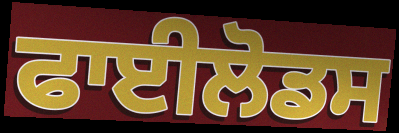
ਫਾਈਲੋਡਸ